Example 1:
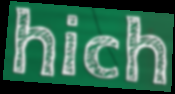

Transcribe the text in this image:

hich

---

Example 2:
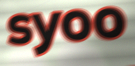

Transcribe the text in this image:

syoo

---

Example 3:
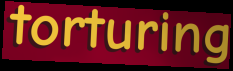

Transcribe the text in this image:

torturing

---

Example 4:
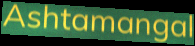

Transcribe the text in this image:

Ashtamangal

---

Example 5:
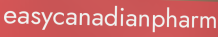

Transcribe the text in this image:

easycanadianpharm